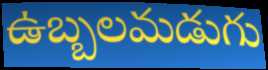
ఉబ్బలమడుగు